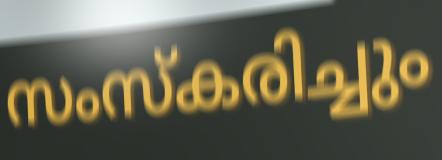
സംസ്കരിച്ചും